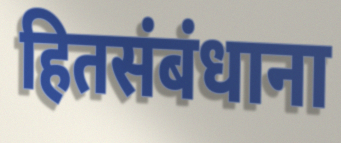
हितसंबंधाना